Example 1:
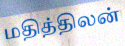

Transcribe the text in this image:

மதித்திலன்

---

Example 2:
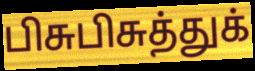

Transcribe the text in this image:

பிசுபிசுத்துக்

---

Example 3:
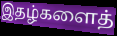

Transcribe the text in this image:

இதழ்களைத்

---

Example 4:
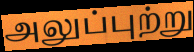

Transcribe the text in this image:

அலுப்புற்று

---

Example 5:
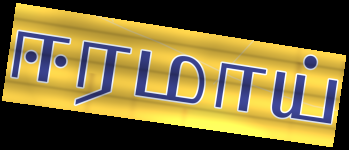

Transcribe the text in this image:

ஈரமாய்